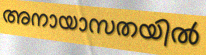
അനായാസതയിൽ